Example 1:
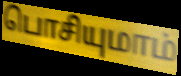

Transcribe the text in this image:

பொசியுமாம்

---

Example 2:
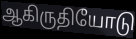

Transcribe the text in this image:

ஆகிருதியோடு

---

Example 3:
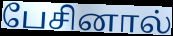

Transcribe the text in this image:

பேசினால்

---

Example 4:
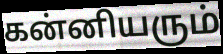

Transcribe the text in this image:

கன்னியரும்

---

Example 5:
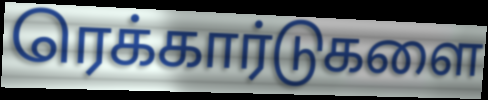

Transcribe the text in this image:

ரெக்கார்டுகளை